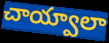
చాయ్వాలా